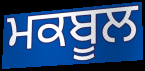
ਮਕਬੂਲ